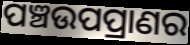
ପଞ୍ଚଉପପ୍ରାଣର